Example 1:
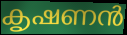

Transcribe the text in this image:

കൃഷണൻ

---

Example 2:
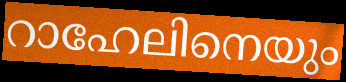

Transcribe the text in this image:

റാഹേലിനെയും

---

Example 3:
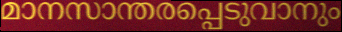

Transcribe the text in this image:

മാനസാന്തരപ്പെടുവാനും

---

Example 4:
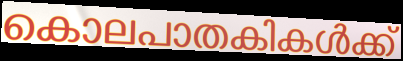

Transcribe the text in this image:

കൊലപാതകികൾക്ക്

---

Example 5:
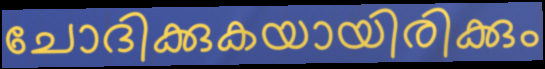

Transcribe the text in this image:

ചോദിക്കുകയായിരിക്കും